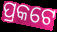
ପ୍ରକଟେ